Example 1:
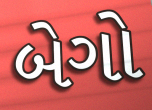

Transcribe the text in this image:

બેગો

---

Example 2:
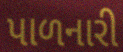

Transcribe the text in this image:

પાળનારી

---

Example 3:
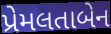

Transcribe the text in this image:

પ્રેમલતાબેન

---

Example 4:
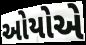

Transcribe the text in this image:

ઓયોએ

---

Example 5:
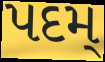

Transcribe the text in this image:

પદમ્